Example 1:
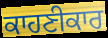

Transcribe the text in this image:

ਕਾਹਣੀਕਾਰ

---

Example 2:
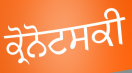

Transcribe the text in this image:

ਕ੍ਰੋਨੋਟਸਕੀ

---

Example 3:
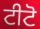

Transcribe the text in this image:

ਟੀਟੋ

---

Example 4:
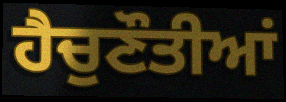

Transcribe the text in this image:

ਹੈਚੁਣੌਤੀਆਂ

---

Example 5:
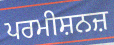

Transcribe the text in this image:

ਪਰਮੀਸ਼ਨਜ਼